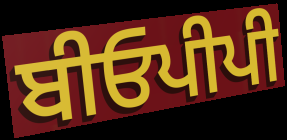
ਬੀਓਪੀਪੀ